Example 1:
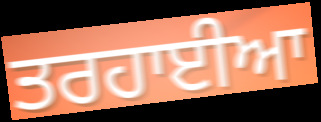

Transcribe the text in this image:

ਤਰਹਾਈਆ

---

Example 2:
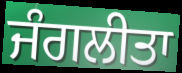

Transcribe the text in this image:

ਜੰਗਲੀਤਾ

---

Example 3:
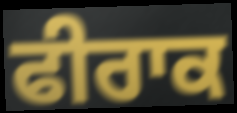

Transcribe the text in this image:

ਫੀਰਾਕ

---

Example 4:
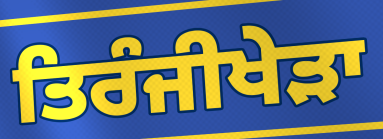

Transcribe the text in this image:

ਤਿਰੰਜੀਖੇੜਾ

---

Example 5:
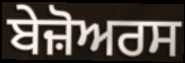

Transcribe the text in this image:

ਬੇਜ਼ੋਅਰਸ